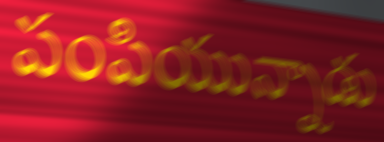
పంపియున్నాడు